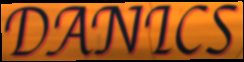
DANICS